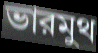
ভারমুথ